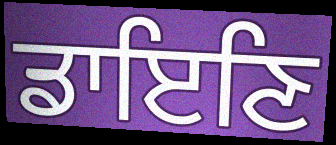
ਡਾਇਣਿ